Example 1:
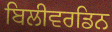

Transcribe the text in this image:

ਬਿਲੀਵਰਡਿਨ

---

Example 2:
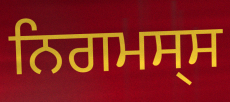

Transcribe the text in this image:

ਨਿਗਮਸ੍ਸ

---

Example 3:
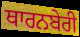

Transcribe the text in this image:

ਥਾਰਨਬੇਰੀ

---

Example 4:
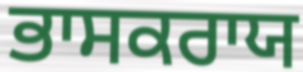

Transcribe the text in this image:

ਭਾਸਕਰਾਯ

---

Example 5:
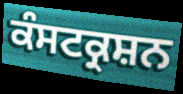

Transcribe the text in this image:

ਕੰਸਟਕ੍ਰਸ਼ਨ